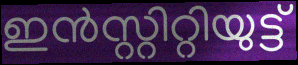
ഇൻസ്റ്റിറ്റിയുട്ട്